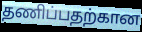
தணிப்பதற்கான